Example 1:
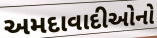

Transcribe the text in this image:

અમદાવાદીઓનો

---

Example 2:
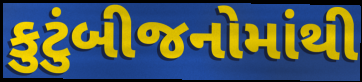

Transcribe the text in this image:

કુટુંબીજનોમાંથી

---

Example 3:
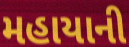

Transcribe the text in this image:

મહાયાની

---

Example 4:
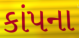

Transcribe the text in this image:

કાંપના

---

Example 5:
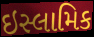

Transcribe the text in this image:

ઇસ્લામિક